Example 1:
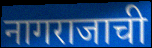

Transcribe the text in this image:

नागराजाची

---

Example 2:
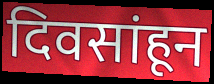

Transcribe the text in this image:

दिवसांहून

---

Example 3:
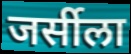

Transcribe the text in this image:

जर्सीला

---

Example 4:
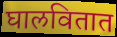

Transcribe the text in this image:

घालवितात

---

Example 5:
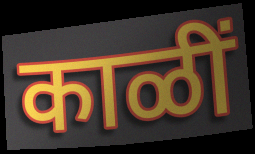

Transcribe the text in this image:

काळीं